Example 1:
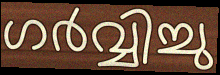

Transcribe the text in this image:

ഗർവ്വിച്ചു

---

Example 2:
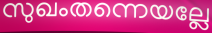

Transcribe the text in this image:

സുഖംതന്നെയല്ലേ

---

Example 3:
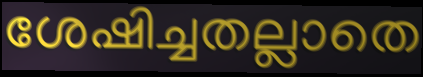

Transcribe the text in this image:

ശേഷിച്ചതല്ലാതെ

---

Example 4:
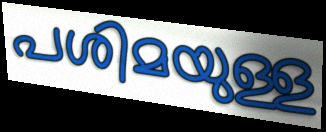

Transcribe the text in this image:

പശിമയുള്ള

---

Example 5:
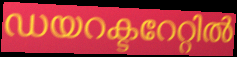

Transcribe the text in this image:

ഡയറക്ടറേറ്റിൽ